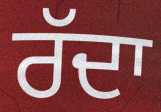
ਰੱਦਾ